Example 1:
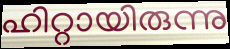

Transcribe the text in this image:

ഹിറ്റായിരുന്നു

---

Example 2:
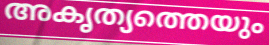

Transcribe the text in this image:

അകൃത്യത്തെയും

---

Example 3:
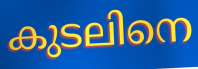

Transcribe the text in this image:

കുടലിനെ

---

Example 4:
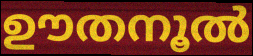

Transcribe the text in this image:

ഊതനൂൽ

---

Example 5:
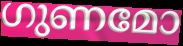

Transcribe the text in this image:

ഗുണമോ